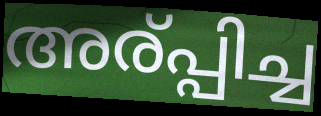
അര്പ്പിച്ച